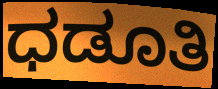
ಧಡೂತಿ